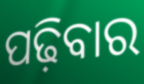
ପଢ଼ିବାର